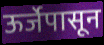
ऊर्जेपासून